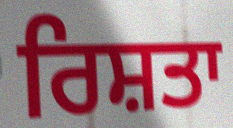
ਰਿਸ਼ਤਾ